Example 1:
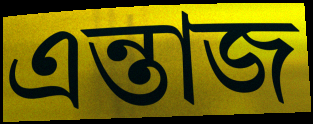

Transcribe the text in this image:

এন্তাজ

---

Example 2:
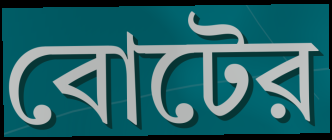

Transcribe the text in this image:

বোটের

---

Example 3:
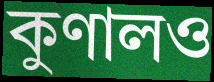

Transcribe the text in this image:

কুণালও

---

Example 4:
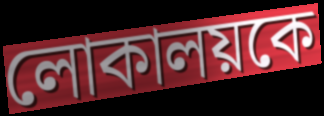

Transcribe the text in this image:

লোকালয়কে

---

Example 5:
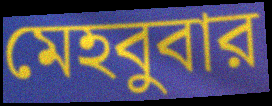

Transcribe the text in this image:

মেহবুবার